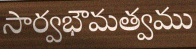
సార్వభౌమత్వము